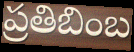
ప్రతిబింబ